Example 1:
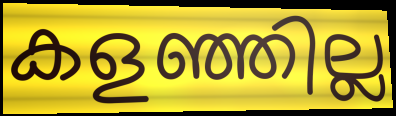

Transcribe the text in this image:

കളഞ്ഞില്ല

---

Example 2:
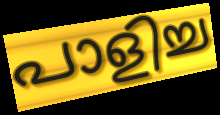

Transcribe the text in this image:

പാളിച്ച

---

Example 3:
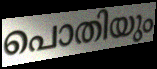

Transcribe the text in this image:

പൊതിയും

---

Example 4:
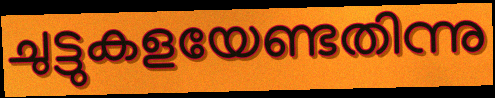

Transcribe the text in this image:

ചുട്ടുകളയേണ്ടതിന്നു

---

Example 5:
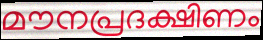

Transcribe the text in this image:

മൗനപ്രദക്ഷിണം